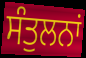
ਸੰਤੁਲਨਾਂ